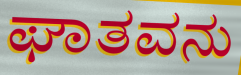
ಘಾತವನು